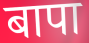
बापा